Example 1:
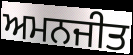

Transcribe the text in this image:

ਅਮਨਜੀਤ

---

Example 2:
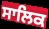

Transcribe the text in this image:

ਸਾਲਿਕ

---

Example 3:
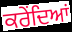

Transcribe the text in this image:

ਕਰੇਂਦਿਆਂ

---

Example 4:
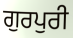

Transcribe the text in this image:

ਗੁਰਪੁਰੀ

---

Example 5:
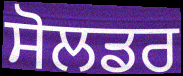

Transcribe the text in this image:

ਸੋਲਡਰ